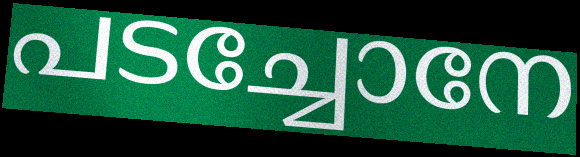
പടച്ചോനേ